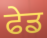
ਫੇਡ